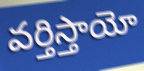
వర్తిస్తాయో